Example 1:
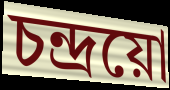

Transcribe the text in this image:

চন্দ্ৰয়ো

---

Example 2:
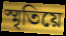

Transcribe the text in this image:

স্মৃতিয়ে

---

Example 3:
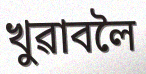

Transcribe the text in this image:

খুৱাবলৈ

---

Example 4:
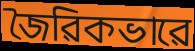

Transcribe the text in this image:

জৈৱিকভাৱে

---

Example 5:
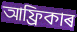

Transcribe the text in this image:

আফ্ৰিকাৰ